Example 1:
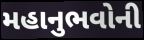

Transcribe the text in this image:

મહાનુભવોની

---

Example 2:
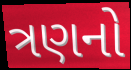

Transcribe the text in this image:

ત્રણનો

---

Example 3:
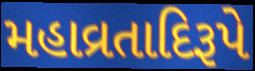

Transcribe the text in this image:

મહાવ્રતાદિરૂપે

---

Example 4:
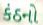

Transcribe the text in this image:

કંઠનો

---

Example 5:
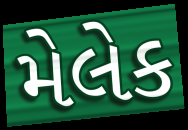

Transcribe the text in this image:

મેલેક